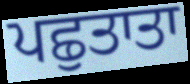
ਪਛੁਤਾਤਾ